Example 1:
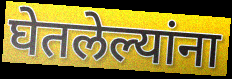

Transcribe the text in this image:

घेतलेल्यांना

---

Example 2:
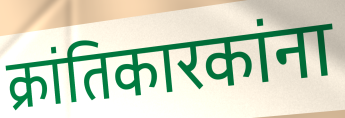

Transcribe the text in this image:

क्रांतिकारकांना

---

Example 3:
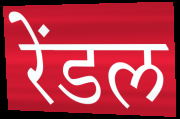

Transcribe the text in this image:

रेंडल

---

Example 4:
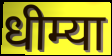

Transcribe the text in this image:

धीम्या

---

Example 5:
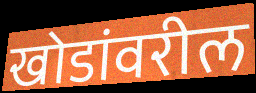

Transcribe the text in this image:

खोडांवरील